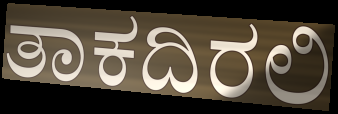
ತಾಕದಿರಲಿ